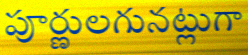
పూర్ణులగునట్లుగా